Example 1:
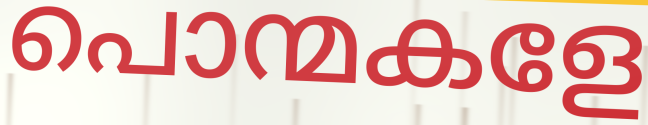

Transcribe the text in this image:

പൊന്മകളേ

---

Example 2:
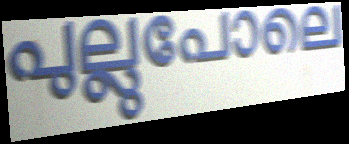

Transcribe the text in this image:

പുല്ലുപോലെ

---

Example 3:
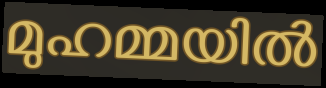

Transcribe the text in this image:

മുഹമ്മയിൽ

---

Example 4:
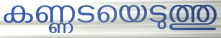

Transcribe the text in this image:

കണ്ണടയെടുത്തു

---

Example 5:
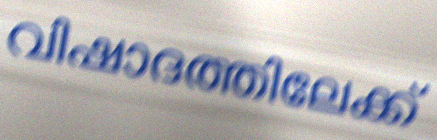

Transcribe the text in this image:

വിഷാദത്തിലേക്ക്